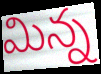
మిన్న